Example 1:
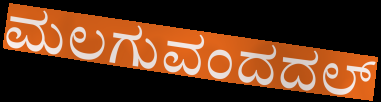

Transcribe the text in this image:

ಮಲಗುವಂದದಲ್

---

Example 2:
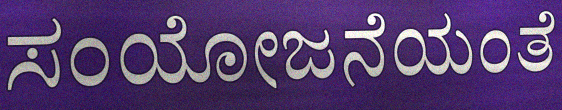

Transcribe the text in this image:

ಸಂಯೋಜನೆಯಂತೆ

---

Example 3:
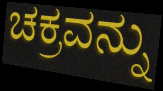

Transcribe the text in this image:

ಚಕ್ರವನ್ನು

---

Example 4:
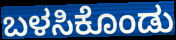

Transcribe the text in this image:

ಬಳಸಿಕೊಂಡು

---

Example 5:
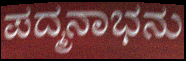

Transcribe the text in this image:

ಪದ್ಮನಾಭನು